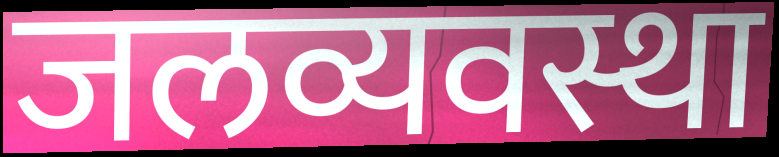
जलव्यवस्था